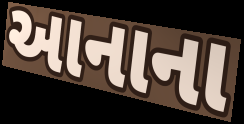
આનાના